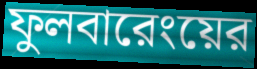
ফুলবারেংয়ের